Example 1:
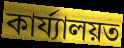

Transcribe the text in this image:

কাৰ্য্যালয়ত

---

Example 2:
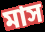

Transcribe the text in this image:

মাস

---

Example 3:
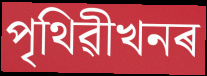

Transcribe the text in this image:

পৃথিৱীখনৰ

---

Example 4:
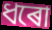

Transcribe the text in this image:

ধৰো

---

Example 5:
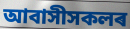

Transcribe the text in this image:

আবাসীসকলৰ